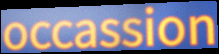
occassion